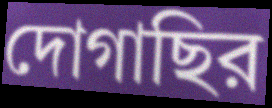
দোগাছির